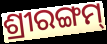
ଶ୍ରୀରଙ୍ଗମ୍